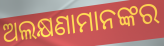
ଅଲକ୍ଷଣାମାନଙ୍କର